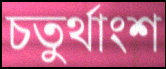
চতুৰ্থাংশ